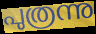
പുത്രന്നു